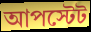
আপস্টেট